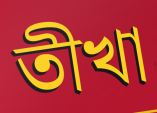
তীখা